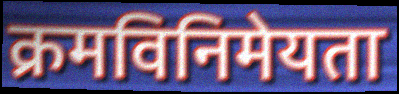
क्रमविनिमेयता